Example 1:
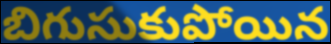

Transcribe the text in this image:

బిగుసుకుపోయిన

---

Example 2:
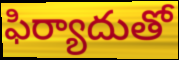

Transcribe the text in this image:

ఫిర్యాదుతో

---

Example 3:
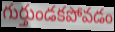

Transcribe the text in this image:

గుర్తుండకపోవడం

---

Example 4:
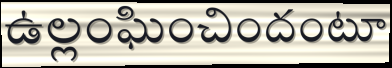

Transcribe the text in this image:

ఉల్లంఘించిందంటూ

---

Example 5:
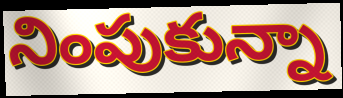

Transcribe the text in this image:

నింపుకున్నా